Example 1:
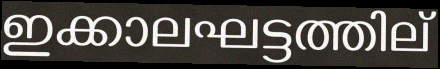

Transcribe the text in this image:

ഇക്കാലഘട്ടത്തില്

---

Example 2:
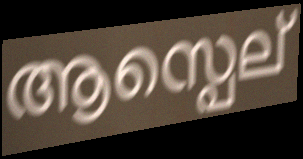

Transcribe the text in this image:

ആസ്പെല്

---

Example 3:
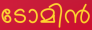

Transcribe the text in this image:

ടോമിൻ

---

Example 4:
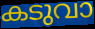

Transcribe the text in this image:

കടുവാ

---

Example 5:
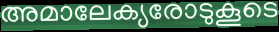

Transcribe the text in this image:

അമാലേക്യരോടുകൂടെ